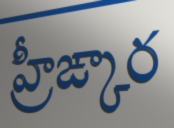
హ్రీఙ్కార